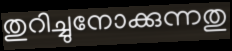
തുറിച്ചുനോക്കുന്നതു